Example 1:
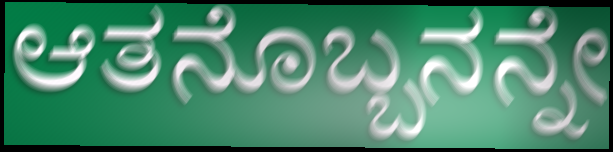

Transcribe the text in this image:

ಆತನೊಬ್ಬನನ್ನೇ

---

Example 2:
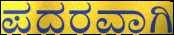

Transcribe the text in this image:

ಪದರವಾಗಿ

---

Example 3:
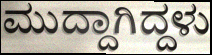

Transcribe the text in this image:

ಮುದ್ದಾಗಿದ್ದಳು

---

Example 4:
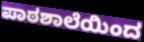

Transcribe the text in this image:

ಪಾಠಶಾಲೆಯಿಂದ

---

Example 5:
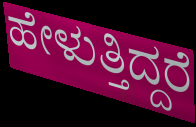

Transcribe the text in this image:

ಹೇಳುತ್ತಿದ್ದರೆ